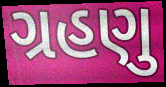
ગ્રહણુ